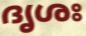
ദൃശഃ